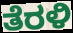
ತೆರಳಿ